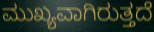
ಮುಖ್ಯವಾಗಿರುತ್ತದೆ